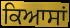
ਕਿਆਸਾਂ